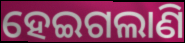
ହେଇଗଲାଣି